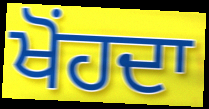
ਖੋਂਹਦਾ